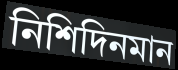
নিশিদিনমান